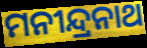
ମନୀନ୍ଦ୍ରନାଥ